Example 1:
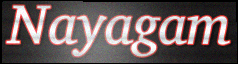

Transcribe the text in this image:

Nayagam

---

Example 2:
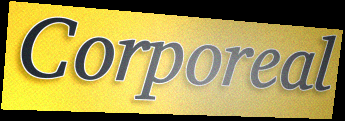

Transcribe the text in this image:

Corporeal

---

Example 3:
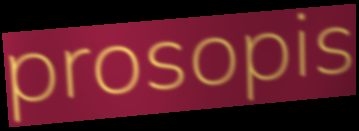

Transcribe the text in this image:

prosopis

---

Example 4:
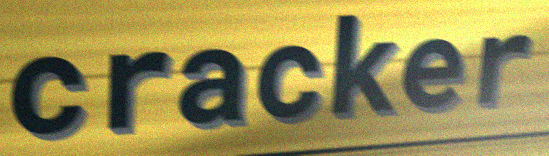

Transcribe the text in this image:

cracker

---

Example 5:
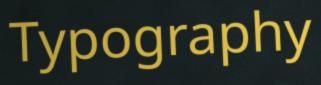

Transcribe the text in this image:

Typography